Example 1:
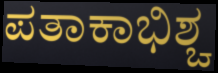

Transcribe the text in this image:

ಪತಾಕಾಭಿಶ್ಚ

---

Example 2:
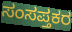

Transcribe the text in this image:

ಸಂಸಪ್ತಕರ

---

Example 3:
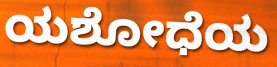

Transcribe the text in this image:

ಯಶೋಧೆಯ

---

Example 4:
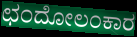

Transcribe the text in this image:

ಛಂದೋಲಂಕಾರ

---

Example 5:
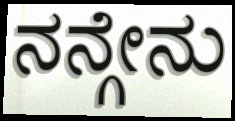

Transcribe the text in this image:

ನನ್ಗೇನು